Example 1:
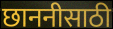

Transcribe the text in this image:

छाननीसाठी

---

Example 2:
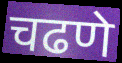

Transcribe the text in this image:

चढणे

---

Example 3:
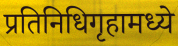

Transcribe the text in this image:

प्रतिनिधिगृहामध्ये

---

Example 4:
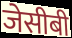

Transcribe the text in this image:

जेसीबी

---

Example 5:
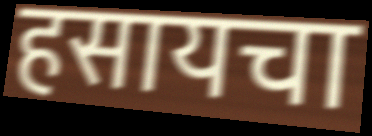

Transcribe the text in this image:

हसायचा